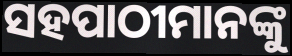
ସହପାଠୀମାନଙ୍କୁ